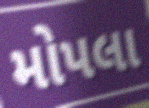
મોપલા